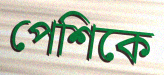
পেশিকে